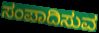
ಸಂಪಾದಿಸುವ